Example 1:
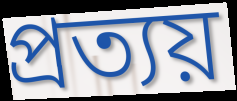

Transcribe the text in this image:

প্রত্যয়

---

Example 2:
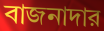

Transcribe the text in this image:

বাজনাদার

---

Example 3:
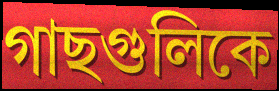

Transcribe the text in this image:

গাছগুলিকে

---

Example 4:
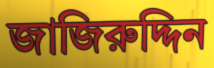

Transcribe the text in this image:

জাজিরুদ্দিন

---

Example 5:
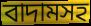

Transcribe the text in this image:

বাদামসহ